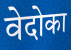
वेदोका